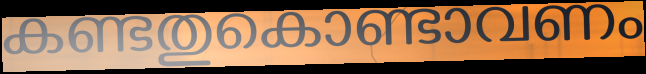
കണ്ടതുകൊണ്ടാവണം